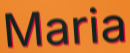
Maria